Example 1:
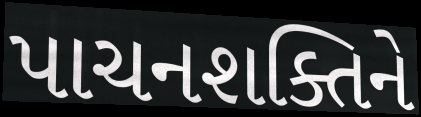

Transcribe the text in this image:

પાચનશક્તિને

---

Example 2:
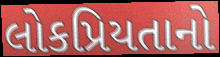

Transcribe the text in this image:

લોકપ્રિયતાનો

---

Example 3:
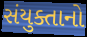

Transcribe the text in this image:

સંયુક્તાનો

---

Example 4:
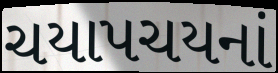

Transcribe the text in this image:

ચયાપચયનાં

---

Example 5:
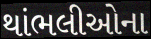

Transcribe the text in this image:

થાંભલીઓના